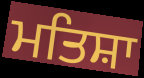
ਮਤਿਸ਼ਾ